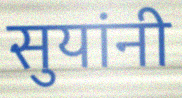
सुयांनी